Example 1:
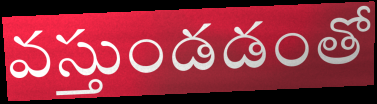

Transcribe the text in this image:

వస్తుండడంతో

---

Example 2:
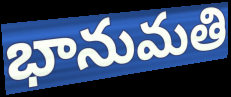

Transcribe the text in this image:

భానుమతి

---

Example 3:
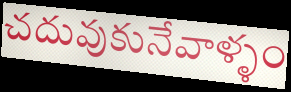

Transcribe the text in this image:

చదువుకునేవాళ్ళం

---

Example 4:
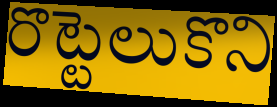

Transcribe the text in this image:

రొట్టెలుకొని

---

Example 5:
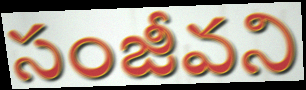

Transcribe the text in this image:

సంజీవని